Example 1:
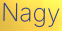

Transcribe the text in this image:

Nagy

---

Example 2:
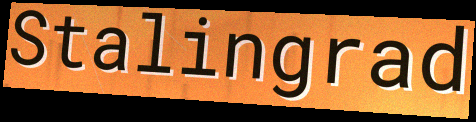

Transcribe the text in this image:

Stalingrad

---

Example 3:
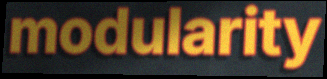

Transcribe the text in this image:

modularity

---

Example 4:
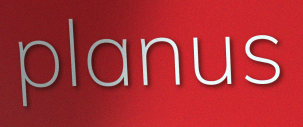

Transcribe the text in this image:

planus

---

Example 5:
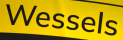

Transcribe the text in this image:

Wessels